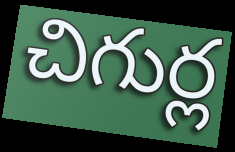
చిగుర్ల